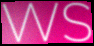
WS